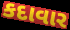
કદાવાર